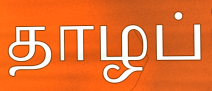
தாழப்